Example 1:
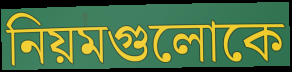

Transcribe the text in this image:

নিয়মগুলোকে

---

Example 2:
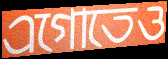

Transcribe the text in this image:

এগোতেও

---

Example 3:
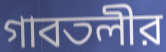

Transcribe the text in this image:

গাবতলীর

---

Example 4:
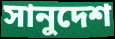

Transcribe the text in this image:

সানুদেশ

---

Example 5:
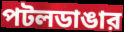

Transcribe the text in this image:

পটলডাঙার